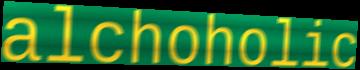
alchoholic